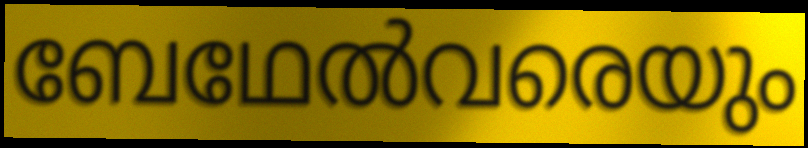
ബേഥേൽവരെയും